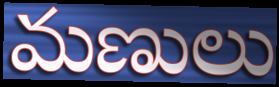
మణులు